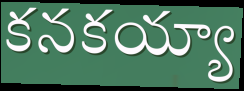
కనకయ్యా